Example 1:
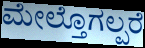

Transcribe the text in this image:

ಮೇಲ್ತೊಗಲ್ಪರೆ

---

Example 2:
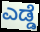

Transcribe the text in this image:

ಎಡ್ಡೆ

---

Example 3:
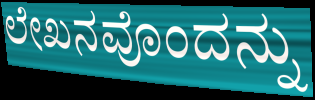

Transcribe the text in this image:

ಲೇಖನವೊಂದನ್ನು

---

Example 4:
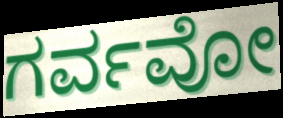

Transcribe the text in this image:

ಗರ್ವವೋ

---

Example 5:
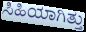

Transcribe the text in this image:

ಸಿಹಿಯಾಗಿತ್ತು